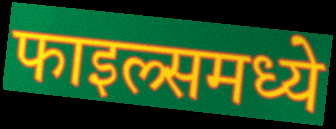
फाइल्समध्ये